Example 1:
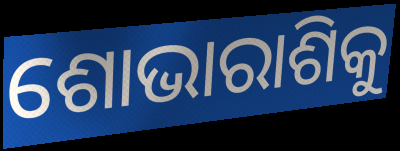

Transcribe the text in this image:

ଶୋଭାରାଶିକୁ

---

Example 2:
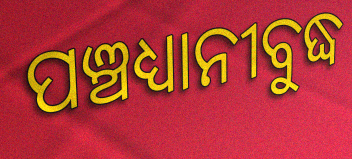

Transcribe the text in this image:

ପଞ୍ଚଧ୍ୟାନୀବୁଦ୍ଧ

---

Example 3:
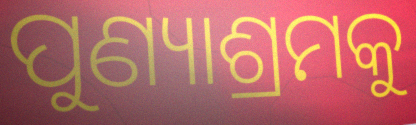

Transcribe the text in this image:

ପୁଣ୍ୟାଶ୍ରମକୁ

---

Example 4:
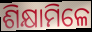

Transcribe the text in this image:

ଶିକ୍ଷାମିଳେ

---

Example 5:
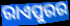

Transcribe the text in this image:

ରାଏପୁରର